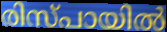
രിസ്പായിൽ